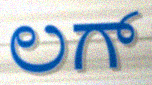
ಲಗ್